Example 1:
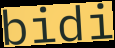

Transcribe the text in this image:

bidi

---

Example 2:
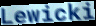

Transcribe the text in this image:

Lewicki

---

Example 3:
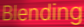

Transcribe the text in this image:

Blending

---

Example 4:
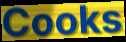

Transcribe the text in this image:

Cooks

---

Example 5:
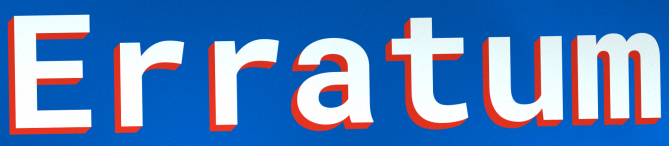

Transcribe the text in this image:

Erratum